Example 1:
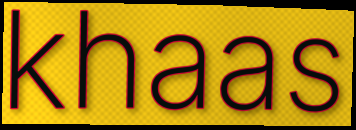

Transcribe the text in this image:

khaas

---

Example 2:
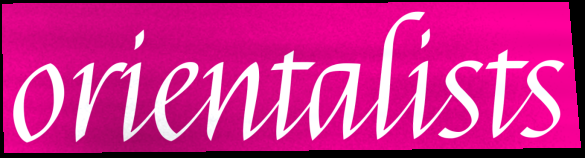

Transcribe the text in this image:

orientalists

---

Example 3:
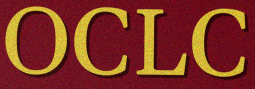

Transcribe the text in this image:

OCLC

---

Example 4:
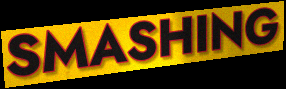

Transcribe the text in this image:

SMASHING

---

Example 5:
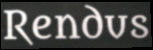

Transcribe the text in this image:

Rendus